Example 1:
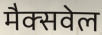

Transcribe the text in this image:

मैक्‍सवेल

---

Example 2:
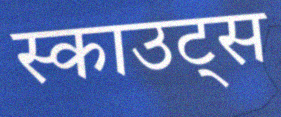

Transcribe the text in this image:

स्काउट्स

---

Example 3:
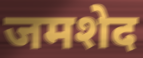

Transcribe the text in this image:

जमशेद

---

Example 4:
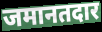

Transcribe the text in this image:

जमानतदार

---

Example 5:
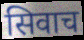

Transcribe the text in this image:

सिवाच